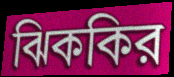
ঝিককির